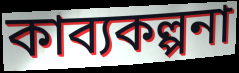
কাব্যকল্পনা